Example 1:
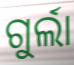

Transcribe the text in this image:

ଗୁର୍ଲା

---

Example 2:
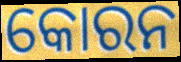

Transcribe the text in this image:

କୋରନ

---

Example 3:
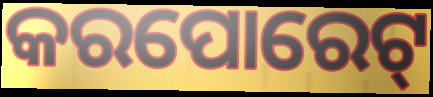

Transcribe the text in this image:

କରପୋରେଟ୍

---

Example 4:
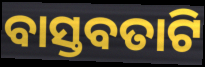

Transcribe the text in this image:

ବାସ୍ତବତାଟି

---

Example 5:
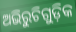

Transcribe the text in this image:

ଅଭିରୁଚିଗୁଡ଼ିକ